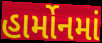
હાર્મોનમાં